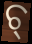
ଚ୍